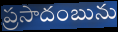
ప్రసాదంబును